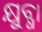
କ୍ଷୁବ୍ଧା